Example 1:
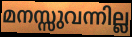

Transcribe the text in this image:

മനസ്സുവന്നില്ല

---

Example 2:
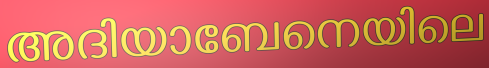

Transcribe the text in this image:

അദിയാബേനെയിലെ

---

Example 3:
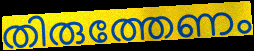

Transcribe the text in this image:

തിരുത്തേണം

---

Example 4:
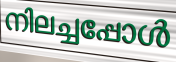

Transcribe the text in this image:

നിലച്ചപ്പോൾ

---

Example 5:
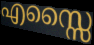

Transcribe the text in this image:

എസ്സൈ